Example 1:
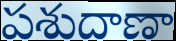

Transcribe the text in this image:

పశుదాణా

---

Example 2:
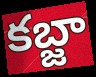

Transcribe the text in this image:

కబ్జా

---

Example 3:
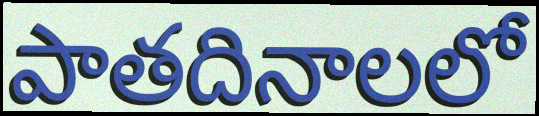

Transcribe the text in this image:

పాతదినాలలో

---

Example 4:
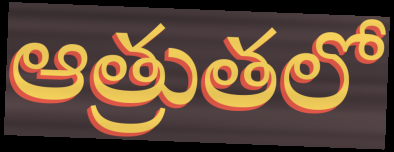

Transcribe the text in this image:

ఆత్రుతలో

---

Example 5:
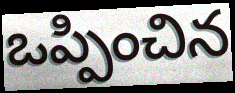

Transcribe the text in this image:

ఒప్పించిన